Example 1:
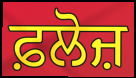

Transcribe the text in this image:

ਫ਼ਲੋਜ਼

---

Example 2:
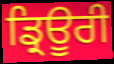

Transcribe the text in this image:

ਡ੍ਰਿਊਰੀ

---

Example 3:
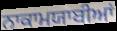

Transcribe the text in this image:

ਨਾਕਾਮਯਾਬੀਆਂ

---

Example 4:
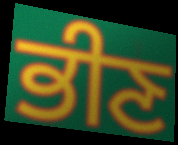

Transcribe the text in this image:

ਭੀਣ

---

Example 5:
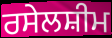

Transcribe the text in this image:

ਰਸੇਲਸ਼ੀਮ